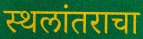
स्थलांतराचा